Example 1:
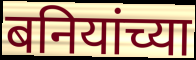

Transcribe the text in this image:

बनियांच्या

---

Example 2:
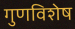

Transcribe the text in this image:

गुणविशेष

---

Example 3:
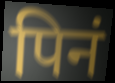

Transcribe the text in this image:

पिनं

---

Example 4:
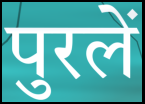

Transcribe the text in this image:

पुरलें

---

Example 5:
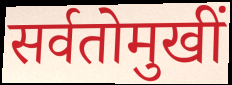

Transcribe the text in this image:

सर्वतोमुखीं